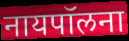
नायपॉलना